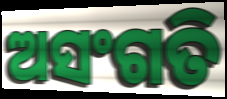
ଅସଂଗତି